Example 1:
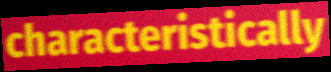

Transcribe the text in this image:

characteristically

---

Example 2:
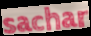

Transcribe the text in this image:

sachar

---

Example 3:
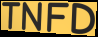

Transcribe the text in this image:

TNFD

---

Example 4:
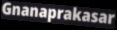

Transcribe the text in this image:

Gnanaprakasar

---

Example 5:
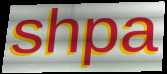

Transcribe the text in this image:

shpa